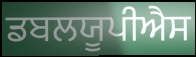
ਡਬਲਯੂਪੀਐਸ